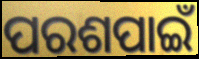
ପରଶପାଇଁ